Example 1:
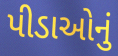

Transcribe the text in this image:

પીડાઓનું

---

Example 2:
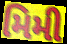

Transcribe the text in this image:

મિમી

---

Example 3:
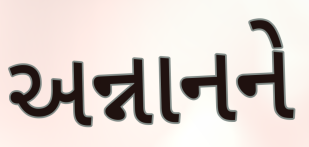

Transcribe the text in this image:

અન્નાનને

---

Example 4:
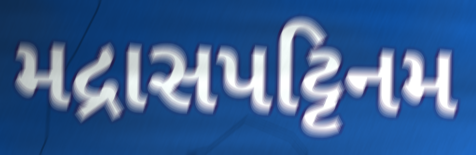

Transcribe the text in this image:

મદ્રાસપટ્ટિનમ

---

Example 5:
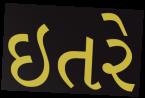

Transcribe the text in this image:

ઇતરે